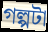
গল্পটা